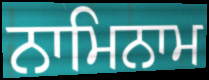
ਨਾਮਿਨਾਮ